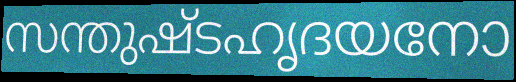
സന്തുഷ്ടഹൃദയനോ